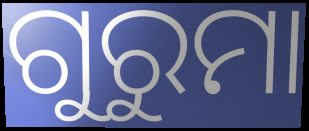
ଗୁରୁମା